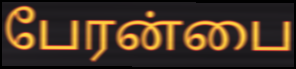
பேரன்பை